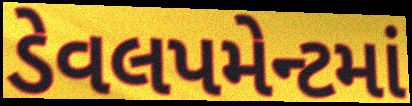
ડેવલપમેન્ટમાં